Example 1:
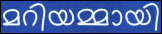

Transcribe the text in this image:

മറിയമ്മായി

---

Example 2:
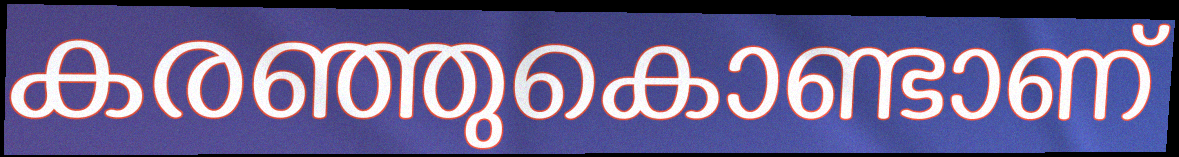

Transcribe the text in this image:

കരഞ്ഞുകൊണ്ടാണ്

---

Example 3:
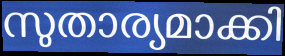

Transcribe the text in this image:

സുതാര്യമാക്കി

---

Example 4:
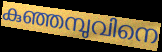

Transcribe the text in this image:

കുഞ്ഞമ്പുവിനെ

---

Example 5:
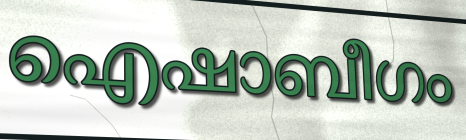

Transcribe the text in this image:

ഐഷാബീഗം